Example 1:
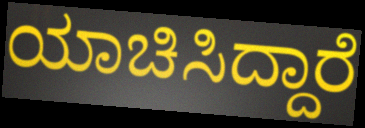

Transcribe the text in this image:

ಯಾಚಿಸಿದ್ದಾರೆ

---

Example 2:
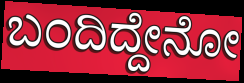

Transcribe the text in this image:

ಬಂದಿದ್ದೇನೋ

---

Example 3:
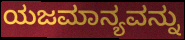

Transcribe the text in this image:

ಯಜಮಾನ್ಯವನ್ನು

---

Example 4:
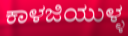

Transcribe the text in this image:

ಕಾಳಜಿಯುಳ್ಳ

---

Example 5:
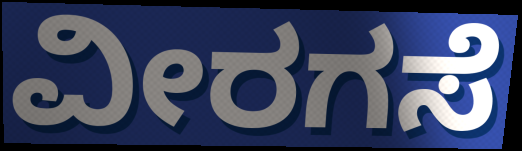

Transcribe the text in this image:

ವೀರಗಸೆ